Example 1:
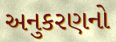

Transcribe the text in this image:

અનુકરણનો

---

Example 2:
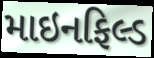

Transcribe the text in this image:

માઇનફિલ્ડ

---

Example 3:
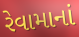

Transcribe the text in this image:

રેવામાનાં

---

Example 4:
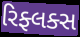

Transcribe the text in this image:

રિફ્લક્સ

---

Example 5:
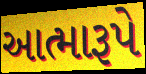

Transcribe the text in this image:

આત્મારૂપે